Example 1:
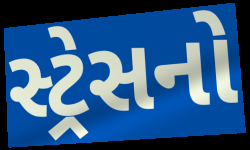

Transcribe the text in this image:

સ્ટ્રેસનો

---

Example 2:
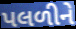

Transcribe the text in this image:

પલળીને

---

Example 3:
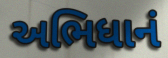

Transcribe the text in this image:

અભિધાનં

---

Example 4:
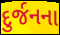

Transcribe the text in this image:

દુર્જનના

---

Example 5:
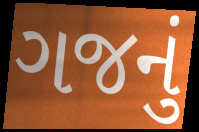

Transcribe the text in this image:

ગજનું